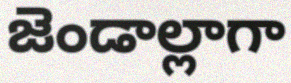
జెండాల్లాగా